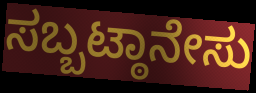
ಸಬ್ಬಟ್ಠಾನೇಸು